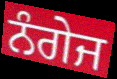
ਨੰਗੇਜ